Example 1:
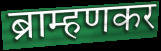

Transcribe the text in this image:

ब्राम्हणकर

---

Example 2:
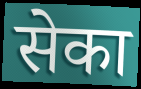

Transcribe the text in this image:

सेका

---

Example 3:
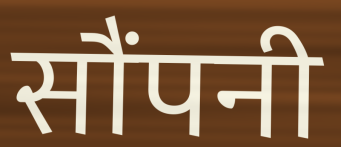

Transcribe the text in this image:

सौंपनी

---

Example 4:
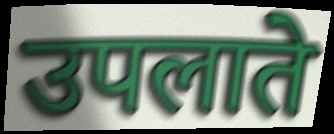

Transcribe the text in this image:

उपलाते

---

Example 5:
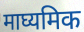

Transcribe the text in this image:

माघ्यमिक